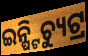
ଇନ୍ଷ୍ଟିଚ୍ୟୁଟ୍ର